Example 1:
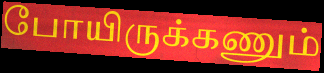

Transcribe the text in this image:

போயிருக்கணும்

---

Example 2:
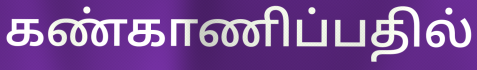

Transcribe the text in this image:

கண்காணிப்பதில்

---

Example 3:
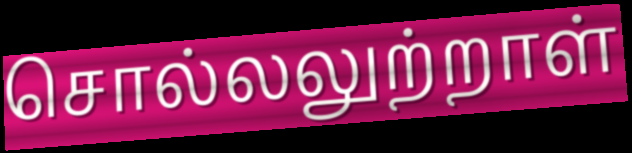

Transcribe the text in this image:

சொல்லலுற்றாள்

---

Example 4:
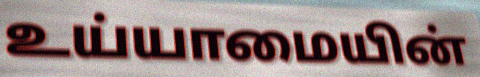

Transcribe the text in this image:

உய்யாமையின்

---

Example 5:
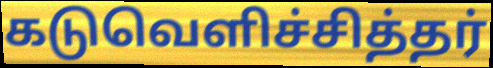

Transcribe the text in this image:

கடுவெளிச்சித்தர்